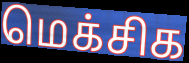
மெக்சிக